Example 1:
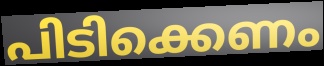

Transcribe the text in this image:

പിടിക്കെണം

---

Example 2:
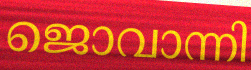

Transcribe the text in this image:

ജൊവാന്നി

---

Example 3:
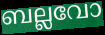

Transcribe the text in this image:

ബല്ലവോ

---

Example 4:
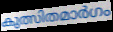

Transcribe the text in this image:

കുത്സിതമാർഗം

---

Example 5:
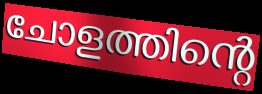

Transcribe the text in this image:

ചോളത്തിന്റെ